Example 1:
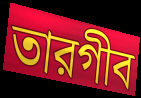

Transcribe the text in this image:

তারগীব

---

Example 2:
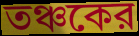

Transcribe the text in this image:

তঞ্চকের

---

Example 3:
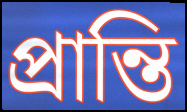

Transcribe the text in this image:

প্রান্তি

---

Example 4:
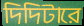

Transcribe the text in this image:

দিদিটারে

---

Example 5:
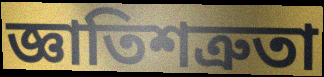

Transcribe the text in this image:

জ্ঞাতিশত্রুতা